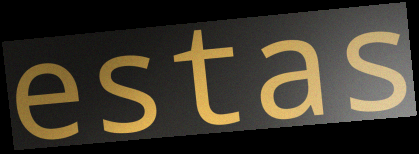
estas